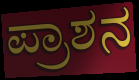
ಪ್ರಾಶನ